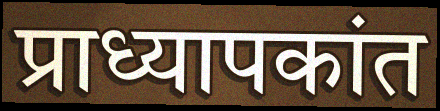
प्राध्यापकांत